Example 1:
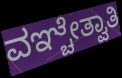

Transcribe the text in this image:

ವಞ್ಚೇತ್ವಾತಿ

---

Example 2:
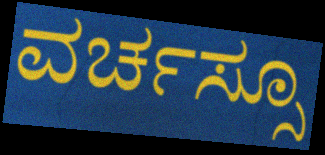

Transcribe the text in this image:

ವರ್ಚಸ್ಸೂ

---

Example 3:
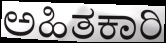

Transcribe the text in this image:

ಅಹಿತಕಾರಿ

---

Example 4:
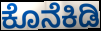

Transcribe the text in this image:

ಕೊನೆಕಿಡಿ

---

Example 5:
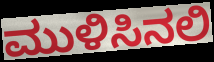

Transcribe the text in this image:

ಮುಳಿಸಿನಲಿ